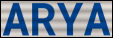
ARYA